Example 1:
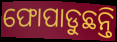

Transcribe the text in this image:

ଫୋପାଡୁଛନ୍ତି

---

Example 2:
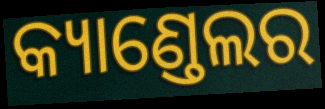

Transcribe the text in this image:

କ୍ୟାଣ୍ଡେଲର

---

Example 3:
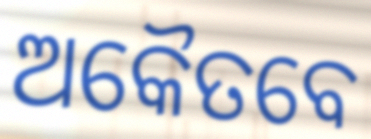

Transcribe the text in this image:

ଅକୈତବେ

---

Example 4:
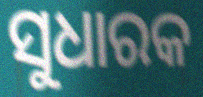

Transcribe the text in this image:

ସୁଧାରକ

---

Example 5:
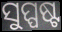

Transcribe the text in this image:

ସୁପ୍ପଷ୍ଟ